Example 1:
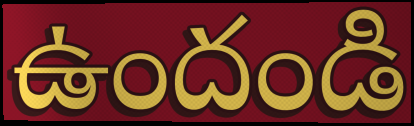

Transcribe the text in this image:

ఉందండి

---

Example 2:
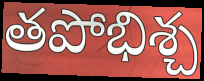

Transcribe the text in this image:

తపోభిశ్చ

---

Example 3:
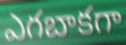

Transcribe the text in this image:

ఎగబాకగా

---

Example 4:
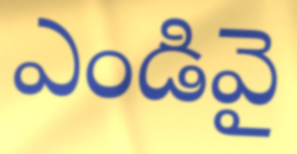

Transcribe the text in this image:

ఎండివై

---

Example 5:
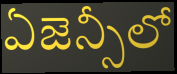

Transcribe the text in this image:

ఏజెన్సీలో